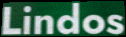
Lindos